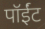
पॉईंट